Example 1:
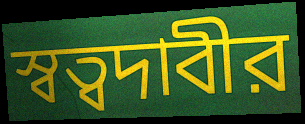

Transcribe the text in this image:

স্বত্বদাবীর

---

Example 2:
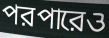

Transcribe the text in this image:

পরপারেও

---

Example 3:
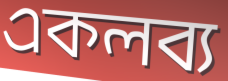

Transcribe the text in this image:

একলব্য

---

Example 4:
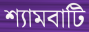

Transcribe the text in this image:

শ্যামবাটি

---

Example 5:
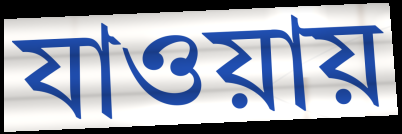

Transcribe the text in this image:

যাওয়ায়